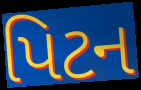
પિટન